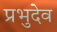
प्रभुदेव